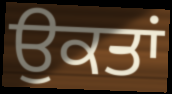
ਉਕਤਾਂ